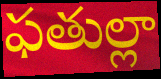
ఫతుల్లా